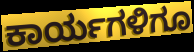
ಕಾರ್ಯಗಳಿಗೂ